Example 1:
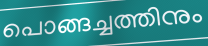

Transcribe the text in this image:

പൊങ്ങച്ചത്തിനും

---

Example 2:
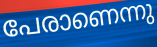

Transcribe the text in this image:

പേരാണെന്നു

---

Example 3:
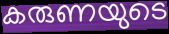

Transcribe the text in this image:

കരുണയുടെ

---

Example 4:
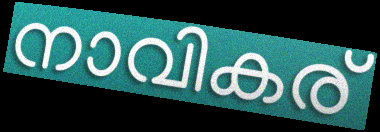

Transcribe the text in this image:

നാവികര്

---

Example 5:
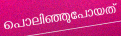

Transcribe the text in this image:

പൊലിഞ്ഞുപോയത്